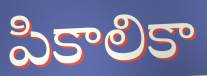
పికాలికా